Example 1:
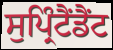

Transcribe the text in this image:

ਸੁਪ੍ਰਿੰਟੈਂਡੈਂਟ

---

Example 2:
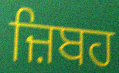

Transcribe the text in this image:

ਜ਼ਿਬਹ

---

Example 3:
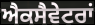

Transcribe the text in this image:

ਐਕਸੈਵੇਟਰਾਂ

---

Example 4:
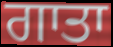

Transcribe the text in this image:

ਗਾਤਾ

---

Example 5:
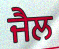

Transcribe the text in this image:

ਜੈਲ